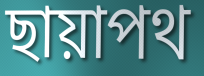
ছায়াপথ